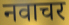
नवाचर